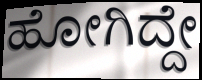
ಹೋಗಿದ್ದೇ